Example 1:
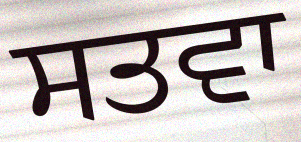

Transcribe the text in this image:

ਸਤਵਾ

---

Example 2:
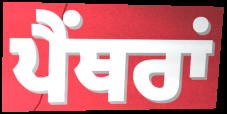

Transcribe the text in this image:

ਪੈਂਥਰਾਂ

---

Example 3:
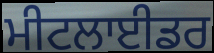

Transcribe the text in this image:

ਮੀਟਲਾਈਡਰ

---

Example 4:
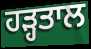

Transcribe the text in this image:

ਹੜ੍ਹਤਾਲ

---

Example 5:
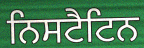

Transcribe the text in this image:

ਨਿਸਟੈਟਿਨ